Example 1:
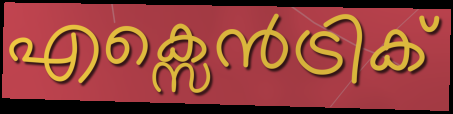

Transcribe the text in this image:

എക്സെൻട്രിക്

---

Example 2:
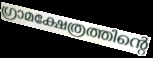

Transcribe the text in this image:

ഗ്രാമക്ഷേത്രത്തിന്റെ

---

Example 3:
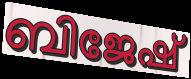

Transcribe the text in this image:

ബിജേഷ്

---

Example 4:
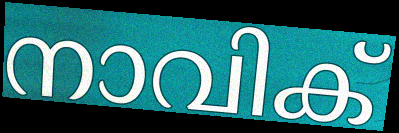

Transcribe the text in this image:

നാവിക്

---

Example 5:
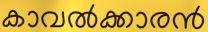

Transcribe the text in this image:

കാവൽക്കാരൻ